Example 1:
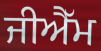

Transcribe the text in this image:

ਜੀਐੱਮ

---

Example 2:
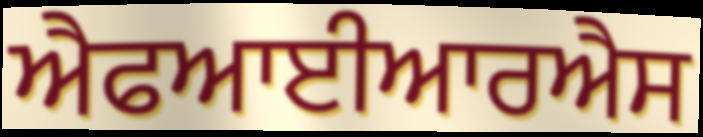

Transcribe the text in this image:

ਐਫਆਈਆਰਐਸ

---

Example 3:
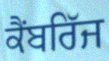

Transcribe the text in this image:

ਕੈਂਬਰਿੱਜ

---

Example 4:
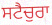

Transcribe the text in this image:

ਸਟੈਚੁਰਾ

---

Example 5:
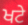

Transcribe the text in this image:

ਖਟੇ